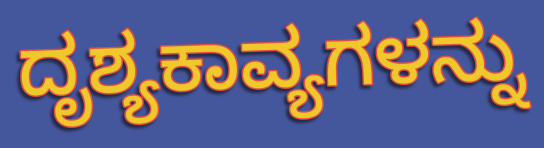
ದೃಶ್ಯಕಾವ್ಯಗಳನ್ನು